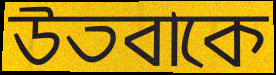
উতবাকে